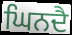
ਘਿਨਦੈ